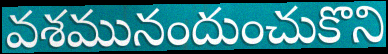
వశమునందుంచుకొని